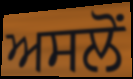
ਅਸਲੋਂ